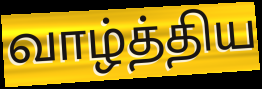
வாழ்த்திய